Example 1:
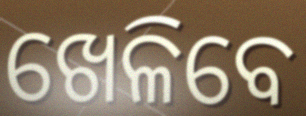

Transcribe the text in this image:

ଖେଳିବେ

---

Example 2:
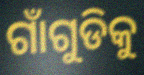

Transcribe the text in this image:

ଗାଁଗୁଡିକୁ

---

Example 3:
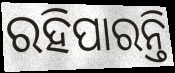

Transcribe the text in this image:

ରହିପାରନ୍ତି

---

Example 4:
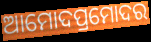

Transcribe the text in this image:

ଆମୋଦପ୍ରମୋଦର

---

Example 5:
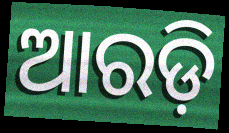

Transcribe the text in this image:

ଆରଡ଼ି